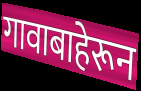
गावाबाहेरून